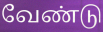
வேண்டு